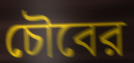
চৌবের